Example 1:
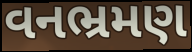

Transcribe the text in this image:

વનભ્રમણ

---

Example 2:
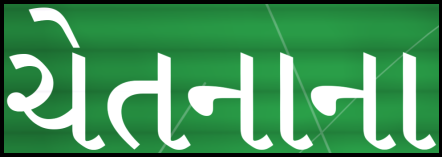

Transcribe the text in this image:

ચેતનાના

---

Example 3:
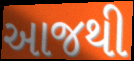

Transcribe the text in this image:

આજથી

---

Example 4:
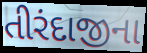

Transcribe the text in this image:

તીરંદાજીના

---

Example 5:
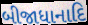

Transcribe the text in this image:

બીજાધાનાદિ